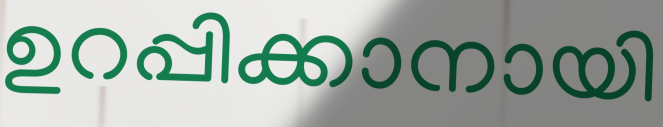
ഉറപ്പിക്കാനായി